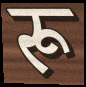
रू